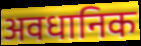
अवधानिक